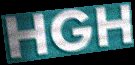
HGH